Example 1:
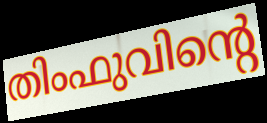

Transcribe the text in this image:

തിംഫുവിന്റെ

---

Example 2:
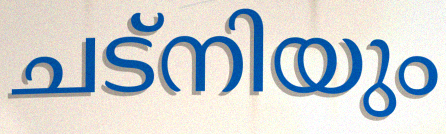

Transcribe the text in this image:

ചട്നിയും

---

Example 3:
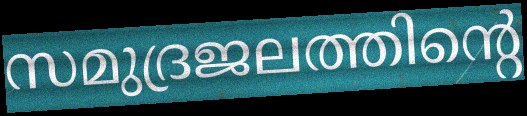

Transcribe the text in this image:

സമുദ്രജലത്തിന്റെ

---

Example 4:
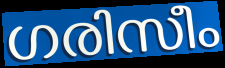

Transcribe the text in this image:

ഗരിസീം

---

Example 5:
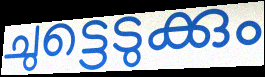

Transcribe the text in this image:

ചുട്ടെടുക്കും